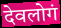
देवलोगं